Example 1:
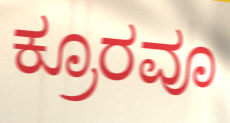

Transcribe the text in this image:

ಕ್ರೂರವೂ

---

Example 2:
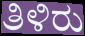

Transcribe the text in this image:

ತಿಳಿರು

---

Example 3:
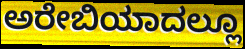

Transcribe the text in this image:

ಅರೇಬಿಯಾದಲ್ಲೂ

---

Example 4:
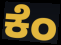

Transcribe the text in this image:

ಕೆಂ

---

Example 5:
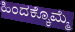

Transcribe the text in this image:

ಹಿಂದಕ್ಕೊಮ್ಮೆ